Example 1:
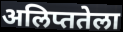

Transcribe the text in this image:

अलिप्ततेला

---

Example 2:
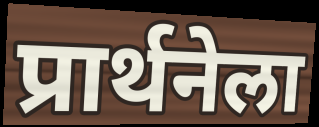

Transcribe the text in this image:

प्रार्थनेला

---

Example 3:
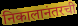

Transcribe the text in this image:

निकालानंतरची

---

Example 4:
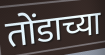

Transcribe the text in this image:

तोंडाच्या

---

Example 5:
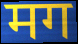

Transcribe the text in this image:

मग